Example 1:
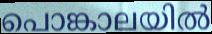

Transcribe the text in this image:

പൊങ്കാലയിൽ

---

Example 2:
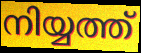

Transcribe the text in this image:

നിയ്യത്ത്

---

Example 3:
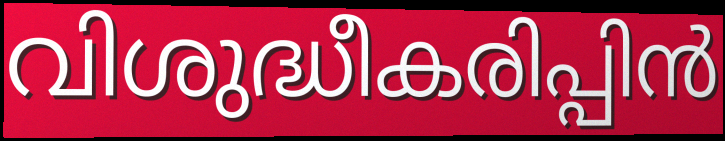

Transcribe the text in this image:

വിശുദ്ധീകരിപ്പിൻ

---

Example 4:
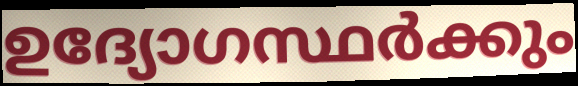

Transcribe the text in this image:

ഉദ്യോഗസ്ഥർക്കും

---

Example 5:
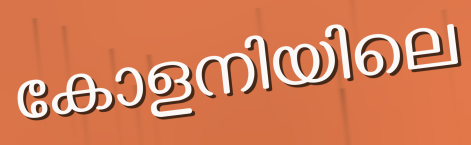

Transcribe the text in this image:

കോളനിയിലെ